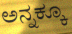
ಅನ್ನಕ್ಕೂ